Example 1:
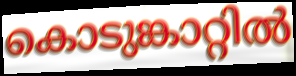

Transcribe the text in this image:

കൊടുങ്കാറ്റിൽ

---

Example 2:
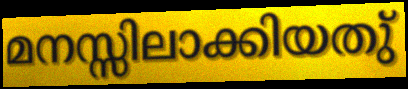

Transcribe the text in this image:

മനസ്സിലാക്കിയതു്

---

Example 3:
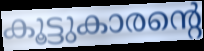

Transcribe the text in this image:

കൂട്ടുകാരന്റെ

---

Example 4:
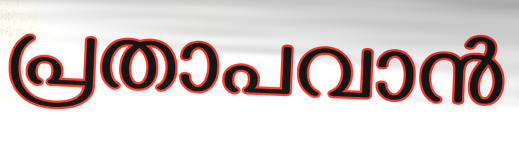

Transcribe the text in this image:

പ്രതാപവാൻ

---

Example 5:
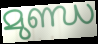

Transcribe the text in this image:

മുണ്ഡ